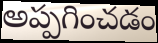
అప్పగించడం